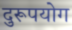
दुरूपयोग